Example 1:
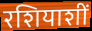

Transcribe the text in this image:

रशियाशीं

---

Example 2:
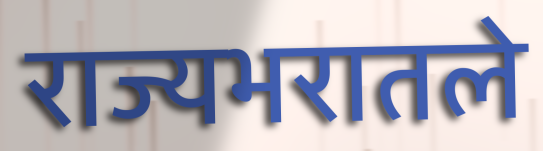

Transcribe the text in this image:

राज्यभरातले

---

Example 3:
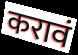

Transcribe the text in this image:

करावं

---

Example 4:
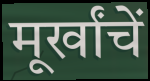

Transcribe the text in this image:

मूर्खांचें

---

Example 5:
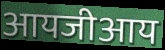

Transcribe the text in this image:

आयजीआय